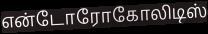
என்டோரோகோலிடிஸ்